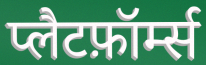
प्लैटफ़ॉर्म्स